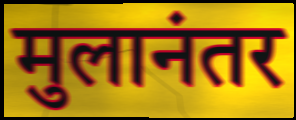
मुलानंतर